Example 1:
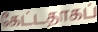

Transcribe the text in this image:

கேட்டதாகப்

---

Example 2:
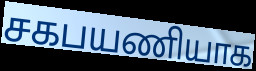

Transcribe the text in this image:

சகபயணியாக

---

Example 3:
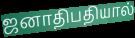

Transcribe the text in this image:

ஜனாதிபதியால்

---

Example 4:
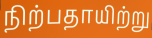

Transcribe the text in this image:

நிற்பதாயிற்று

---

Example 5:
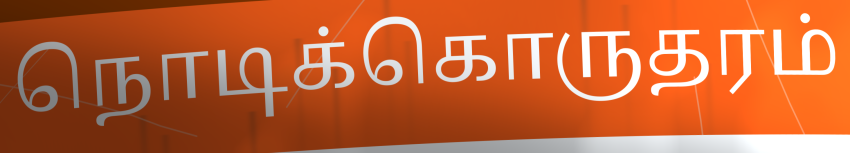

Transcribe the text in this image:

நொடிக்கொருதரம்